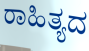
ರಾಹಿತ್ಯದ